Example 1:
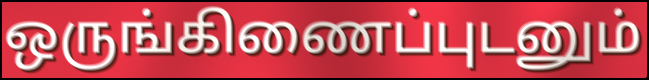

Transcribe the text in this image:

ஒருங்கிணைப்புடனும்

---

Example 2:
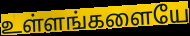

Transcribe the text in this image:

உள்ளங்களையே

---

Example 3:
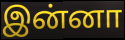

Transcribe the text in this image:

இன்னா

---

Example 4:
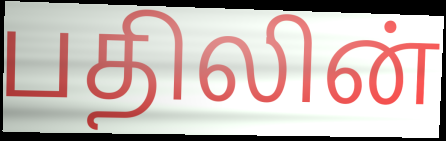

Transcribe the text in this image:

பதிலின்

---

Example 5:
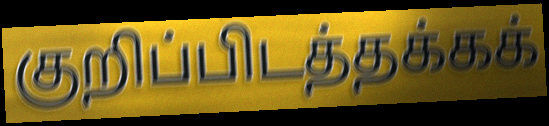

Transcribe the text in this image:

குறிப்பிடத்தக்கக்